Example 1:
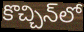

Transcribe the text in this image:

కొచ్చిన్‌లో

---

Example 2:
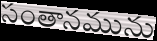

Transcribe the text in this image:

సంతానమును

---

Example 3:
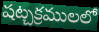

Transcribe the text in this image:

షట్చక్రములలో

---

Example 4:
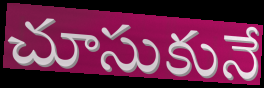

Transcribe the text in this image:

చూసుకునే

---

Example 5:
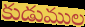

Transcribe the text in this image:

కుడుముల